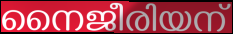
നൈജീരിയന്